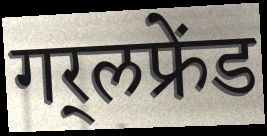
गर्लफ्रेंड